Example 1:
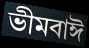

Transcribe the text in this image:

ভীমবাঈ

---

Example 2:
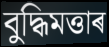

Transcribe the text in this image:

বুদ্ধিমত্তাৰ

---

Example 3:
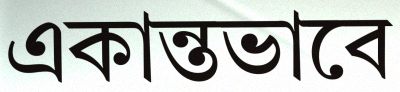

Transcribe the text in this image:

একান্তভাবে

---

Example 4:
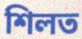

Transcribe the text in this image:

শিলত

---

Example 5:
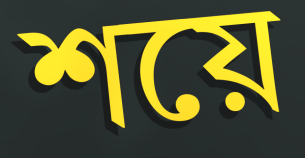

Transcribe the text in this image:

শয়ে